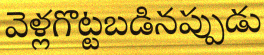
వెళ్లగొట్టబడినప్పుడు